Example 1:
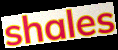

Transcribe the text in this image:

shales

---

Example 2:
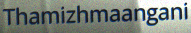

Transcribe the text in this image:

Thamizhmaangani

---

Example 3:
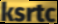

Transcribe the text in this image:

ksrtc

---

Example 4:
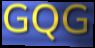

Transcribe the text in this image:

GQG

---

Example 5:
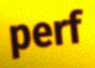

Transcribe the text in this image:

perf